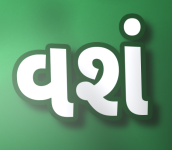
વશં